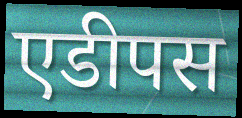
एडीपस